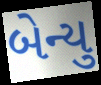
બેન્યુ